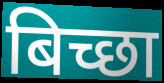
बिच्छा